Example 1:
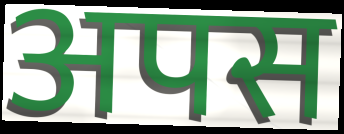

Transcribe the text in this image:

अपस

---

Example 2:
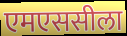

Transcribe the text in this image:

एमएससीला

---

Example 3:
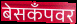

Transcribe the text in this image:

बेसकॅंपवर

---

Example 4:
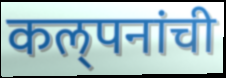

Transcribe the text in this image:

कल्पनांची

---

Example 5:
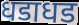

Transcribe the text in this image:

धडाधड